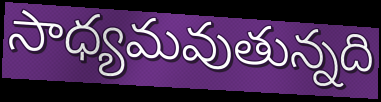
సాధ్యమవుతున్నది